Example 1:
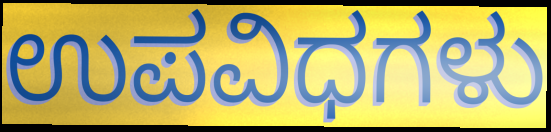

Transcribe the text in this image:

ಉಪವಿಧಗಳು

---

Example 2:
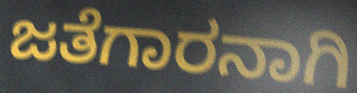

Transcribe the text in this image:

ಜತೆಗಾರನಾಗಿ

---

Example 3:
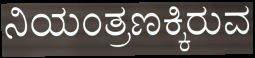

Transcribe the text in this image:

ನಿಯಂತ್ರಣಕ್ಕಿರುವ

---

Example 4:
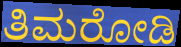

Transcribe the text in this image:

ತಿಮರೋಡಿ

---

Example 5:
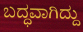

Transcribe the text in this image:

ಬದ್ಧವಾಗಿದ್ದು